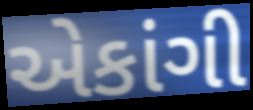
એકાંગી